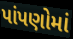
પાંપણોમાં